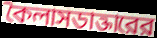
কৈলাসডাক্তারের